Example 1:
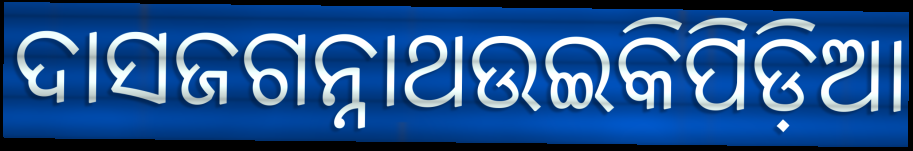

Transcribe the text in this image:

ଦାସଜଗନ୍ନାଥଉଇକିପିଡ଼ିଆ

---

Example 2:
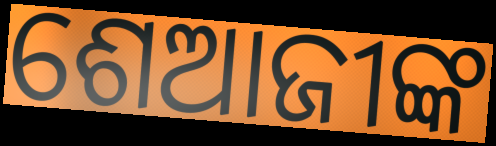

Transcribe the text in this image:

ଶେଆଜୀଙ୍କ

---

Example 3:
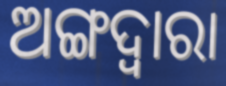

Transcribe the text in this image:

ଅଙ୍ଗଦ୍ଵାରା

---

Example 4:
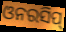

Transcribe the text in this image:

ଓନରସିପ୍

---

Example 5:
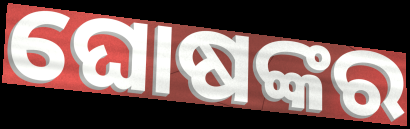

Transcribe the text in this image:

ଘୋଷଙ୍କର